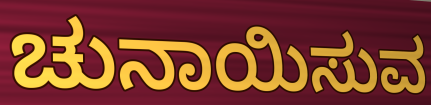
ಚುನಾಯಿಸುವ